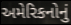
અમેરિકનોનું